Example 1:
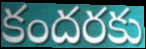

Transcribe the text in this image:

కందరకు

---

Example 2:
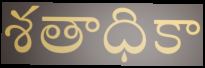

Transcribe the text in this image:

శతాధికా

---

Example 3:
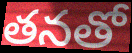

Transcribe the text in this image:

తనతో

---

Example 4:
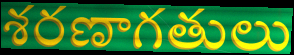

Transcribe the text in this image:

శరణాగతులు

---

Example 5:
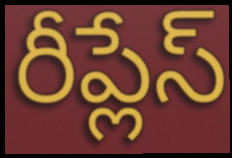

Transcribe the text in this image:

రీప్లేస్